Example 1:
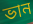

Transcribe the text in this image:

ভান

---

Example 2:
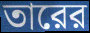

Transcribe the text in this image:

তারের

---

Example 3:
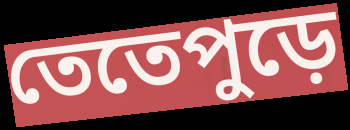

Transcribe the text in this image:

তেতেপুড়ে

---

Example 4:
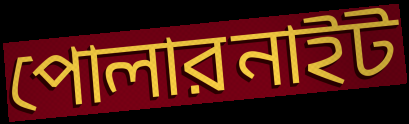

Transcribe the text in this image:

পোলারনাইট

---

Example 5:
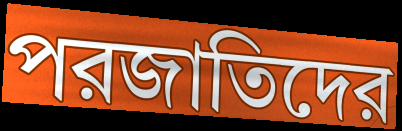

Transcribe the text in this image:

পরজাতিদের